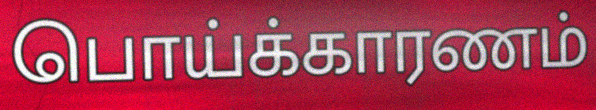
பொய்க்காரணம்